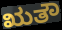
ಋತೌ